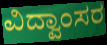
ವಿದ್ವಾಂಸರ